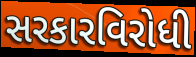
સરકારવિરોધી